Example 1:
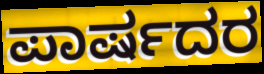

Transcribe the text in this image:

ಪಾರ್ಷದರ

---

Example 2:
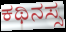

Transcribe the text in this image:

ಕಥಿನಸ್ಸ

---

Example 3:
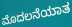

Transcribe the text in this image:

ಮೊದಲನೆಯಾತ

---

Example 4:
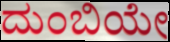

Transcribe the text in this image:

ದುಂಬಿಯೇ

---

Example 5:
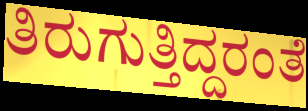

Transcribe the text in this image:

ತಿರುಗುತ್ತಿದ್ದರಂತೆ